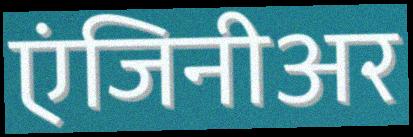
एंजिनीअर